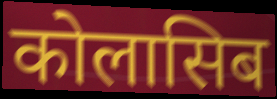
कोलासिब